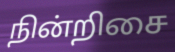
நின்றிசை